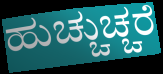
ಹುಚ್ಚುಚ್ಚರೆ